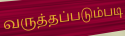
வருத்தப்படும்படி